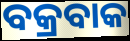
ବକ୍ରବାକ